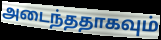
அடைந்ததாகவும்